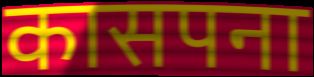
कासपना